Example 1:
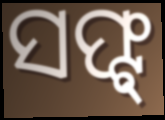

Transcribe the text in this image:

ସଫ୍ଟ୍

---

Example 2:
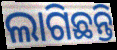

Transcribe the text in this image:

ଲାଗିଛନ୍ତି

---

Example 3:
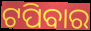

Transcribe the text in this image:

ଟପିବାର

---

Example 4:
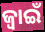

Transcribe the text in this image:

ଜ୍ବାଇଁ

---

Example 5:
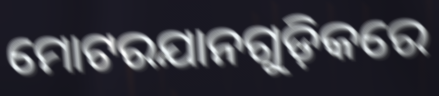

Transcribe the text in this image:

ମୋଟରଯାନଗୁଡ଼ିକରେ